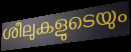
ശീലുകളുടെയും